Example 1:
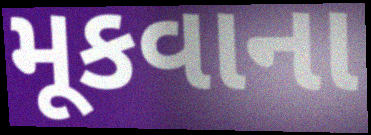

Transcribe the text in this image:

મૂકવાના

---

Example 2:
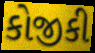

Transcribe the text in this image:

કોજીકી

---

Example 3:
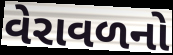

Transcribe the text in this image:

વેરાવળનો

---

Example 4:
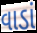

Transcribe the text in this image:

વાડાં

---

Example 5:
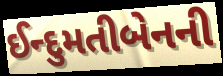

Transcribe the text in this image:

ઈન્દુમતીબેનની